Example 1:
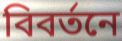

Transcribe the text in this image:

বিবর্তনে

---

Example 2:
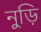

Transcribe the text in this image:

নুড়ি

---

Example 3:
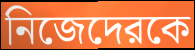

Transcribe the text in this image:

নিজেদেরকে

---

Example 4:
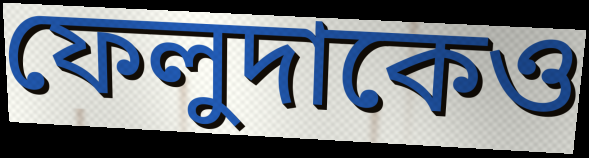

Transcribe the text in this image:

ফেলুদাকেও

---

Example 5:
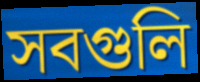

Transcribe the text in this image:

সবগুলি